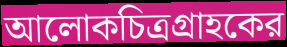
আলোকচিত্রগ্রাহকের